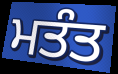
ਮਤੰਤ